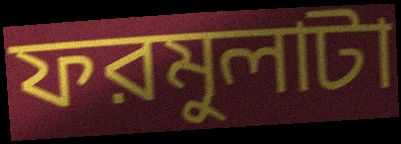
ফরমুলাটা